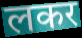
लकर